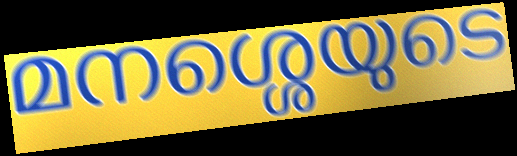
മനശ്ശെയുടെ